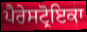
ਪੈਰੇਸਟ੍ਰੋਇਕਾ